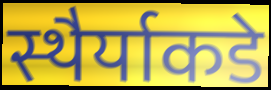
स्थैर्याकडे